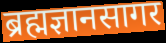
ब्रह्मज्ञानसागर